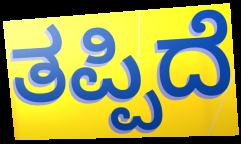
ತಪ್ಪಿದೆ